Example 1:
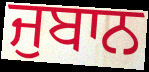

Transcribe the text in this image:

ਜੁਬਾਨ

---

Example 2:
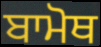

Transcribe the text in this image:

ਬਾਮੋਥ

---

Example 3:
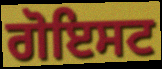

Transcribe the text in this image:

ਗੋਇਸਟ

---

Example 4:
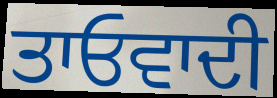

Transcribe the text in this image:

ਤਾਓਵਾਦੀ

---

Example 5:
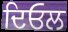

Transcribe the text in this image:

ਦਿਓਲ